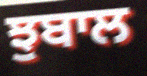
ਝੁਬਾਲ